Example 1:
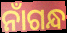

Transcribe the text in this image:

ନାଁଗନ୍ଧ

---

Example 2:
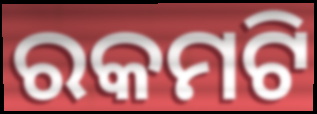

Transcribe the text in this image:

ରକମଟି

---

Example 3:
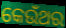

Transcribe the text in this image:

କେଉଁଥର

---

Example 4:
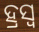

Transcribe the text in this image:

ହ୍ରସ୍ୱ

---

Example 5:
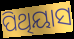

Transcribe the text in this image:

ପିଥିୟାସ